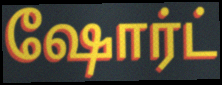
ஷோர்ட்